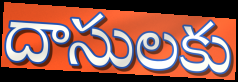
దాసులకు